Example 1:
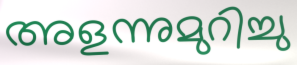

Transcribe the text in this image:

അളന്നുമുറിച്ചു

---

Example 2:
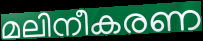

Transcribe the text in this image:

മലിനീകരണ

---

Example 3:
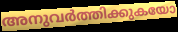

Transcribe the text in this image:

അനുവർത്തിക്കുകയോ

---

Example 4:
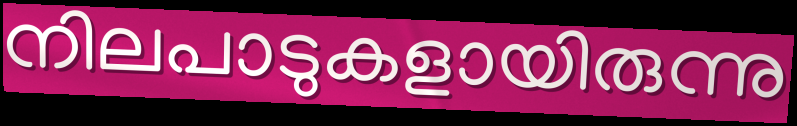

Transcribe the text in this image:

നിലപാടുകളായിരുന്നു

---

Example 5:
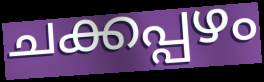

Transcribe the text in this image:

ചക്കപ്പഴം